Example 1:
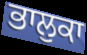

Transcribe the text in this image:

ਭਾਲੁਕਾ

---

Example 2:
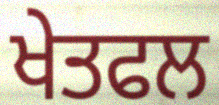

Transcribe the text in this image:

ਖੇਤਫਲ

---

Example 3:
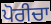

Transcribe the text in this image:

ਪੋਰੀਚਾ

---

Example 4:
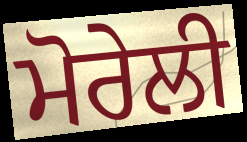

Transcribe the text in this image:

ਮੋਰੇਲੀ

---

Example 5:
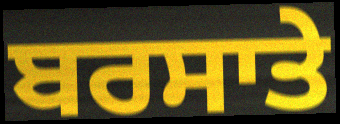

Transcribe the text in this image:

ਬਰਸਾਤੇ